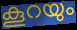
കൂറയും